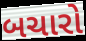
બચારો